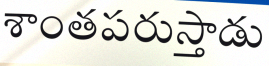
శాంతపరుస్తాడు